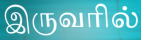
இருவரில்